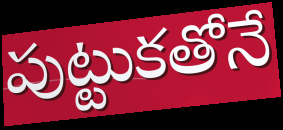
పుట్టుకతోనే